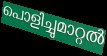
പൊളിച്ചുമാറ്റൽ